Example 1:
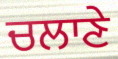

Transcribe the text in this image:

ਚਲਾਣੇ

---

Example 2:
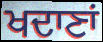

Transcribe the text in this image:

ਖਦਾਣਾਂ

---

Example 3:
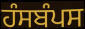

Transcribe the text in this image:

ਹੰਸਬੰਪਸ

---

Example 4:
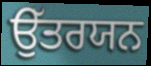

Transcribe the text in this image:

ਉੱਤਰਯਨ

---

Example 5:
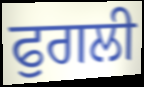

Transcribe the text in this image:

ਫੁਗਲੀ